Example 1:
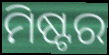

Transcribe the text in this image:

ମିଷ୍ଟର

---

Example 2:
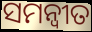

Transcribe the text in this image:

ସମନ୍ଵୀତ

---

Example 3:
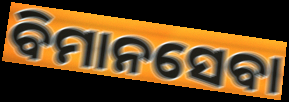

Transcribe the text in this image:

ବିମାନସେବା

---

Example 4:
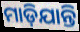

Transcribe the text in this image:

ମାଡ଼ିଯାନ୍ତି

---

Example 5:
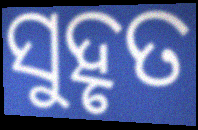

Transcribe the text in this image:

ସୁହୃତ